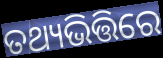
ତଥ୍ୟଭିତ୍ତିରେ